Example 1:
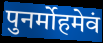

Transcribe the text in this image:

पुनर्मोहमेवं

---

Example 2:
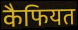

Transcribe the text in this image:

कैफियत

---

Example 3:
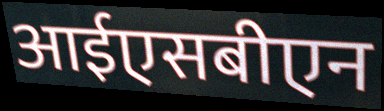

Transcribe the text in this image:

आईएसबीएन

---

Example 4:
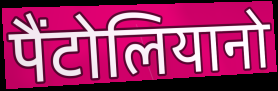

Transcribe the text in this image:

पैंटोलियानो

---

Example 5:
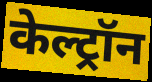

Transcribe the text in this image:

केल्ट्रॉन